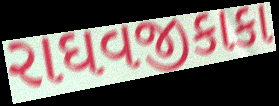
રાઘવજીકાકા